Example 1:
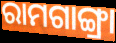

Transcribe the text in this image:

ରାମଗାଙ୍ଗ୍ରା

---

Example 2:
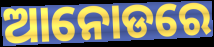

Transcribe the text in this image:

ଆନୋଡରେ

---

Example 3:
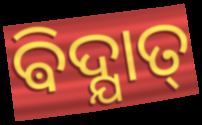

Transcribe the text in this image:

ଵିଦ୍ଯାତ୍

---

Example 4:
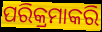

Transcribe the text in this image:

ପରିକ୍ରମାକରି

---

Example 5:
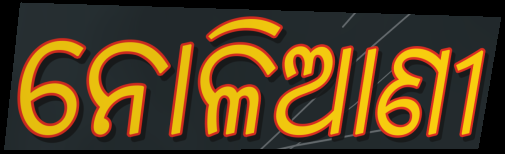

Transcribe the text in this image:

ନୋଳିଆଣୀ